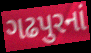
ગઢપુરનાં